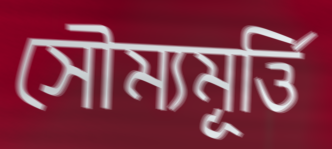
সৌম্যমূর্ত্তি